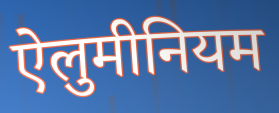
ऐलुमीनियम